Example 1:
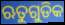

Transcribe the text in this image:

ଋତୁଗୁଡିକ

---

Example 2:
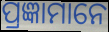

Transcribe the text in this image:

ପ୍ରଜ୍ଞାମାନେ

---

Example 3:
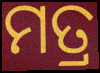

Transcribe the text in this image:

ମତ୍ର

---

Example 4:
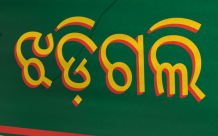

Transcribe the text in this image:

ଝଡ଼ିଗଲି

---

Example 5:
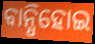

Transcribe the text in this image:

ବାନ୍ଧିହୋଇ